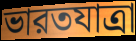
ভারতযাত্রা